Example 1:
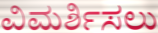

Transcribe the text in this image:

ವಿಮರ್ಶಿಸಲು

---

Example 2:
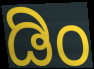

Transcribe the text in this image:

ಡಿಂ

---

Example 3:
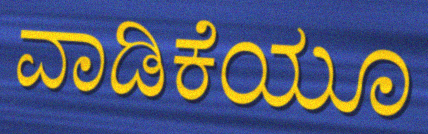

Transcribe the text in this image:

ವಾಡಿಕೆಯೂ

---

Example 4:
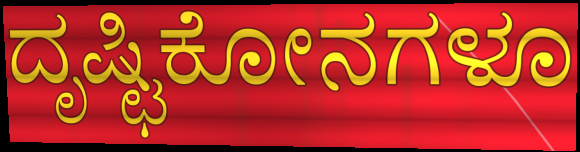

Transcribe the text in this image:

ದೃಷ್ಟಿಕೋನಗಳೂ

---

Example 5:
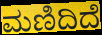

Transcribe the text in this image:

ಮಣಿದಿದೆ